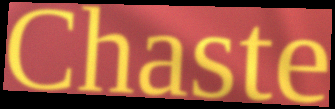
Chaste